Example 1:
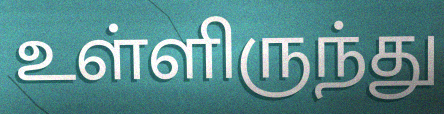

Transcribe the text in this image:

உள்ளிருந்து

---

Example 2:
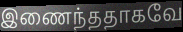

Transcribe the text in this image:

இணைந்ததாகவே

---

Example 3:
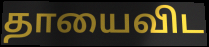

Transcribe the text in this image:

தாயைவிட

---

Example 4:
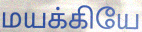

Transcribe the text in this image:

மயக்கியே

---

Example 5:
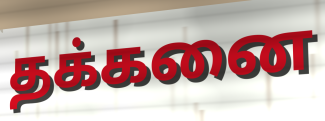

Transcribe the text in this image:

தக்கனை